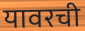
यावरची